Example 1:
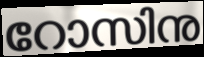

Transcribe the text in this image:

റോസിനു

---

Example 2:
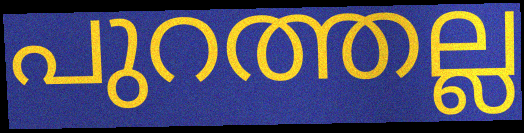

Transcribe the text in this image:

പുറത്തല്ല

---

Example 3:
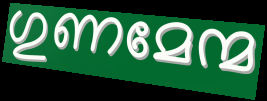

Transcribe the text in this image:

ഗുണമേന്മ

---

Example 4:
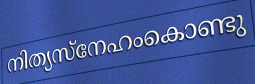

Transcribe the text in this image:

നിത്യസ്നേഹംകൊണ്ടു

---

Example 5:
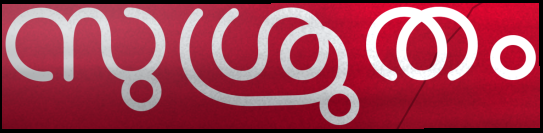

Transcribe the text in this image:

സുശ്രുതം